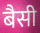
बैसी